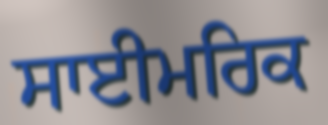
ਸਾਈਮਰਿਕ